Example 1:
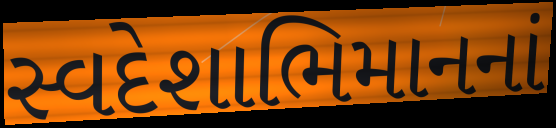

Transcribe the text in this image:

સ્વદેશાભિમાનનાં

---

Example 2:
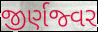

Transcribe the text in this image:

જીર્ણજ્વર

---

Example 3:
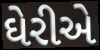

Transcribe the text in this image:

ઘેરીએ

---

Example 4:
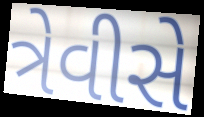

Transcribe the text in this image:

ત્રેવીસે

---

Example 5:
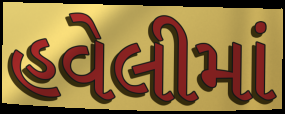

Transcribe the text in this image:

હવેલીમાં